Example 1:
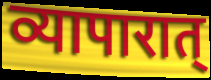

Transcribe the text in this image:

व्यापारात्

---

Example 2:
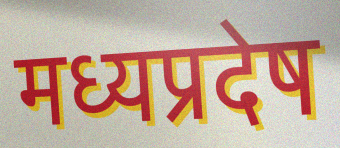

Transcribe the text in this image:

मध्यप्रदेष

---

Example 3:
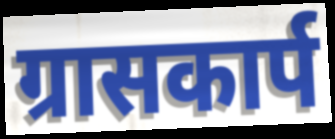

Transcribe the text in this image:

ग्रासकार्प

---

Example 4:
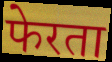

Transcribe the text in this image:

फेरता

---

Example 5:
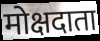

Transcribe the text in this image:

मोक्षदाता